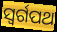
ସ୍ୱର୍ଗପଥ